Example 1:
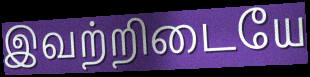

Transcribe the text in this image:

இவற்றிடையே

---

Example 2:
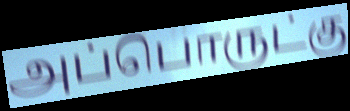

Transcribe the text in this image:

அப்பொருட்கு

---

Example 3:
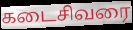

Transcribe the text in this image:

கடைசிவரை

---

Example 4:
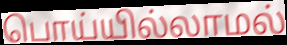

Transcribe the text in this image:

பொய்யில்லாமல்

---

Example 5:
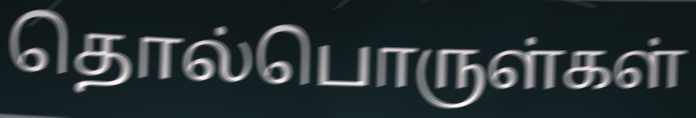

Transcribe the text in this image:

தொல்பொருள்கள்